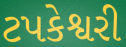
ટપકેશ્વરી